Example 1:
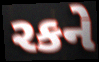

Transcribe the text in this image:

રકને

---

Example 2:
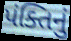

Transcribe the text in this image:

પંક્તિનું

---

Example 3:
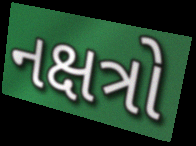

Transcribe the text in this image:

નક્ષત્રો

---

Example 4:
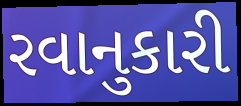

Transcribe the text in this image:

રવાનુકારી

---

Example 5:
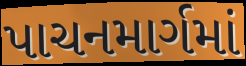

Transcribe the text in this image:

પાચનમાર્ગમાં